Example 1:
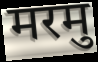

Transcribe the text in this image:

मरमु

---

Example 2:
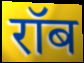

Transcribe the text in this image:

रॉब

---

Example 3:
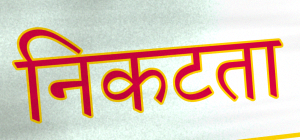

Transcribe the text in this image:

निकटता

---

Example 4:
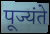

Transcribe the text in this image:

पूज्यंते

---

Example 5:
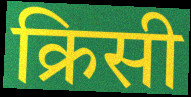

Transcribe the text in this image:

क्रिसी